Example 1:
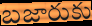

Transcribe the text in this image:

బజారుకు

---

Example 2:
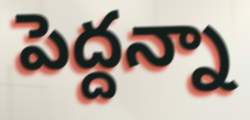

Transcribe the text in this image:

పెద్దన్నా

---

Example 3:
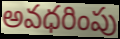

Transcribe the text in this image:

అవధరింపు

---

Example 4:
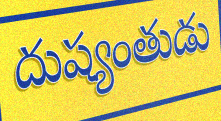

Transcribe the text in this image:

దుష్యంతుడు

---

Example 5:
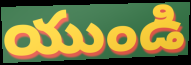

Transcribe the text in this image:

యుండి